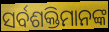
ସର୍ବଶକ୍ତିମାନଙ୍କ